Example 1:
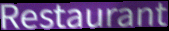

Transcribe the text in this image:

Restaurant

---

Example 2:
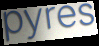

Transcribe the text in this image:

pyres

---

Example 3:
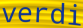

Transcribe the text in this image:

verdi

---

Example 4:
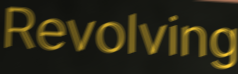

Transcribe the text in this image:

Revolving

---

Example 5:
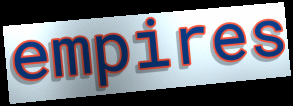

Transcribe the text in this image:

empires